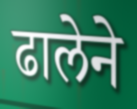
ढालेने